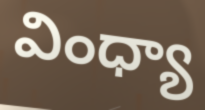
వింధ్యా